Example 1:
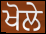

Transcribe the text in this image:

ਖੋਲੇ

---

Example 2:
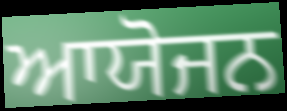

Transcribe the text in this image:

ਆਯੋਜਨ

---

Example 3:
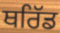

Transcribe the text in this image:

ਥਰਿੱਡ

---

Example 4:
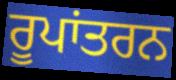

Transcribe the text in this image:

ਰੂਪਾਂਤਰਨ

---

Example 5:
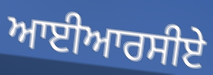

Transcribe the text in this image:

ਆਈਆਰਸੀਏ